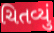
ચિતવ્યું